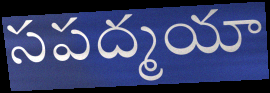
సపద్మయా